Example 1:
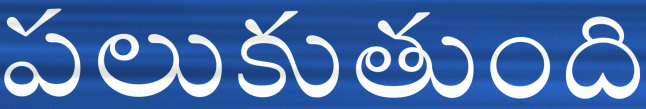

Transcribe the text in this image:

పలుకుతుంది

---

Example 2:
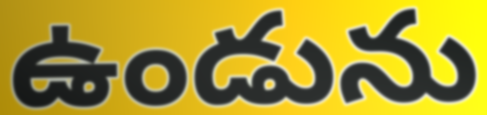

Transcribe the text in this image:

ఉండును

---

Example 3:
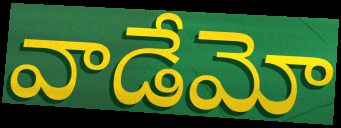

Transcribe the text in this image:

వాడేమో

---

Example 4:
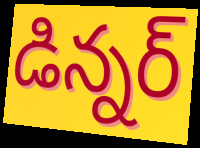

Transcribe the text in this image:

డిన్నర్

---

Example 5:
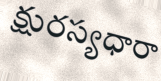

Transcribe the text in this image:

క్షురస్యధారా